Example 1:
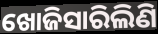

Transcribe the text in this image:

ଖୋଜିସାରିଲିଣି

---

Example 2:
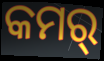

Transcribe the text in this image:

କମର୍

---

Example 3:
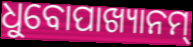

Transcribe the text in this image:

ଧୁବୋପାଖ୍ୟାନମ୍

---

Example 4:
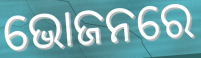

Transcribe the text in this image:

ଭୋଜନରେ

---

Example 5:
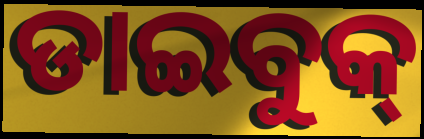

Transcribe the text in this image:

ଡାଇବୁକ୍